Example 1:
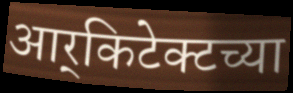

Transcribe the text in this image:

आर्किटेक्टच्या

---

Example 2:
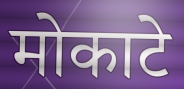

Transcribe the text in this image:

मोकाटे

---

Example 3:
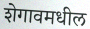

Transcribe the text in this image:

शेगावमधील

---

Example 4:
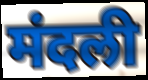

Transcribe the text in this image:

मंदली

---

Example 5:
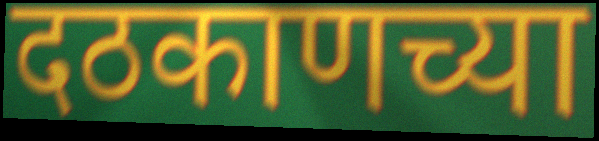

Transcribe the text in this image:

दठकाणच्या